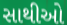
સાથીઓ